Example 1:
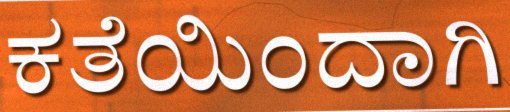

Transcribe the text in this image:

ಕತೆಯಿಂದಾಗಿ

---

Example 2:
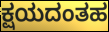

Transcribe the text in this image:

ಕ್ಷಯದಂತಹ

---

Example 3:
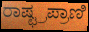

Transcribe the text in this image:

ರಾಷ್ಟ್ರಪ್ರಾಣಿ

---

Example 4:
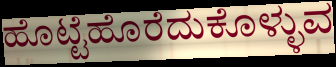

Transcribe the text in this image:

ಹೊಟ್ಟೆಹೊರೆದುಕೊಳ್ಳುವ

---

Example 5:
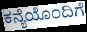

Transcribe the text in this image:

ಕನ್ಯೆಯೊಂದಿಗೆ